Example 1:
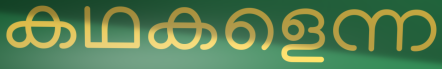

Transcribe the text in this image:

കഥകളെന്ന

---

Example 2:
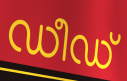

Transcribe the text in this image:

ഡീഡ്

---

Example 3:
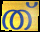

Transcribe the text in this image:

ത്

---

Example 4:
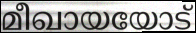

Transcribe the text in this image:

മീഖായയോട്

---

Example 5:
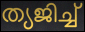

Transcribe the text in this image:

ത്യജിച്ച്